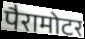
पैरामोटर